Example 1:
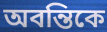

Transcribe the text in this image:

অবন্তিকে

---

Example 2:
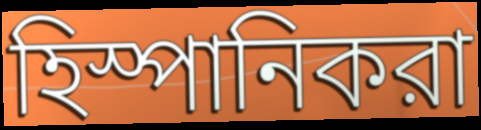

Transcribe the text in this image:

হিস্পানিকরা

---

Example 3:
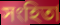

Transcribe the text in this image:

সংহিতা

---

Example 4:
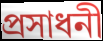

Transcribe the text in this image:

প্রসাধনী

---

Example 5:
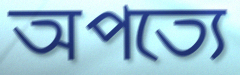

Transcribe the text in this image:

অপত্যে